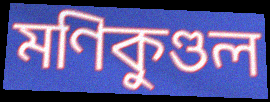
মণিকুণ্ডল